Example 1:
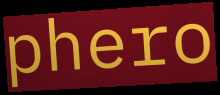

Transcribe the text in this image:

phero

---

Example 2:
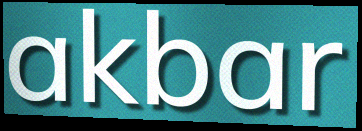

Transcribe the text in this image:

akbar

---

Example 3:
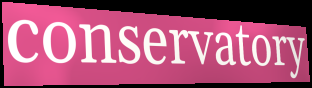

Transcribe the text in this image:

conservatory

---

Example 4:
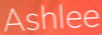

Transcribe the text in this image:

Ashlee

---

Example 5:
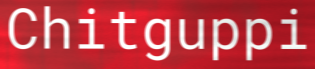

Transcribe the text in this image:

Chitguppi